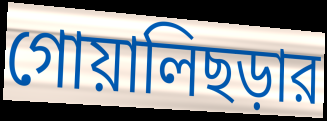
গোয়ালিছড়ার